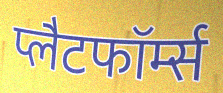
प्लैटफॉर्म्स